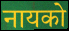
नायको